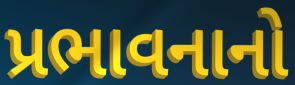
પ્રભાવનાનો